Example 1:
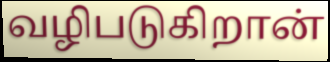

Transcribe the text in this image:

வழிபடுகிறான்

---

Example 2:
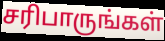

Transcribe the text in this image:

சரிபாருங்கள்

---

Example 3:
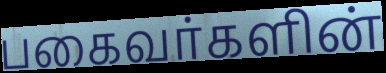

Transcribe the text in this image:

பகைவர்களின்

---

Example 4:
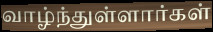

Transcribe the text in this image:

வாழ்ந்துள்ளார்கள்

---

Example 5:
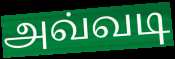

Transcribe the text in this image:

அவ்வடி